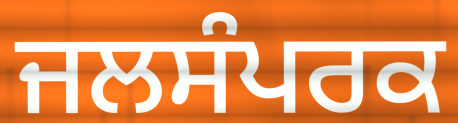
ਜਲਸੰਪਰਕ